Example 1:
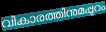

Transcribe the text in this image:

വികാരത്തിനുമപ്പുറം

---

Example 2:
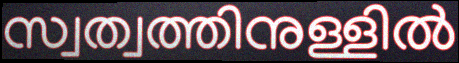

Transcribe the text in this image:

സ്വത്വത്തിനുള്ളിൽ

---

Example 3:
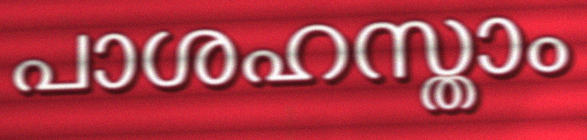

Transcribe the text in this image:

പാശഹസ്താം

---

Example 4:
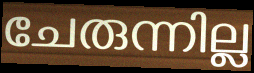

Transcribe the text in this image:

ചേരുന്നില്ല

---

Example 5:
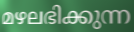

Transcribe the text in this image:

മഴലഭിക്കുന്ന